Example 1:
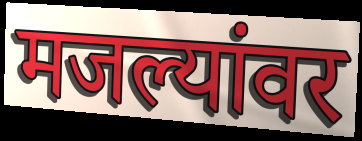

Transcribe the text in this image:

मजल्यांवर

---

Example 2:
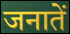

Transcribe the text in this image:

जनातें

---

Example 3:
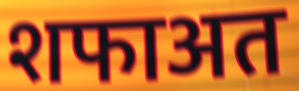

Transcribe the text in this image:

शफाअत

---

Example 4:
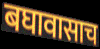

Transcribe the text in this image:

बघावासाच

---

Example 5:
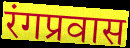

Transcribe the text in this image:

रंगप्रवास